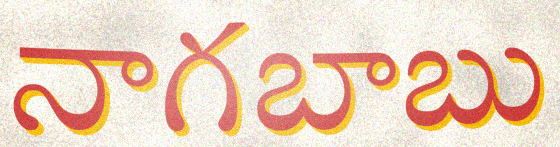
నాగబాబు